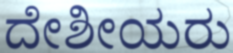
ದೇಶೀಯರು